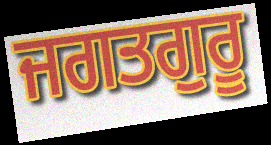
ਜਗਤਗੁਰੂ